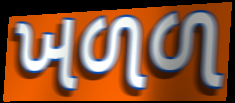
ખળળ